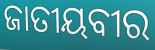
ଜାତୀୟବୀର